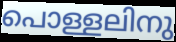
പൊള്ളലിനു